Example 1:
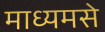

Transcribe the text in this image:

माध्यमसे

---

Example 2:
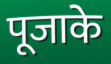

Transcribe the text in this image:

पूजाके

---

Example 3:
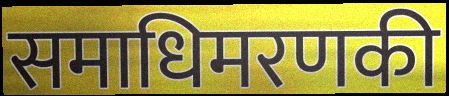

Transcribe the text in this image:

समाधिमरणकी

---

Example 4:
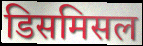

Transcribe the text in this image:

डिसमिसल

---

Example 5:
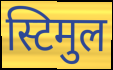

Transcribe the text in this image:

स्टिमुल